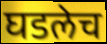
घडलेच